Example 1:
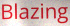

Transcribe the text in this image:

Blazing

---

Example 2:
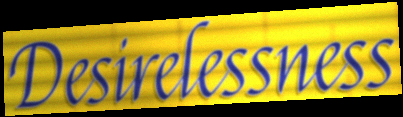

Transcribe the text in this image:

Desirelessness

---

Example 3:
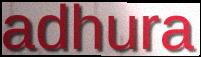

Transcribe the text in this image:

adhura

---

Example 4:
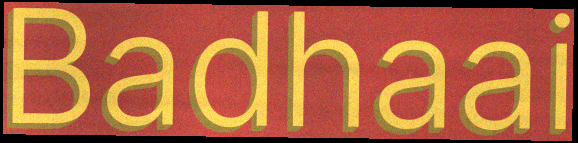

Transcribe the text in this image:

Badhaai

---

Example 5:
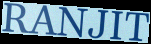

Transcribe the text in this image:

RANJIT